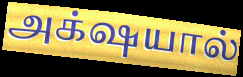
அக்‌ஷயால்